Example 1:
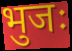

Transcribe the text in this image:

भुजः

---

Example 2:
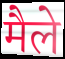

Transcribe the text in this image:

मैले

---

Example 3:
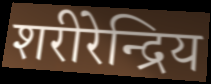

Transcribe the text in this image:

शरीरेन्द्रिय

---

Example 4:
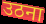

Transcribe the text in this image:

उठना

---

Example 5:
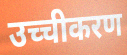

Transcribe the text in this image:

उच्चीकरण